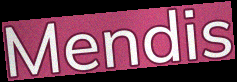
Mendis